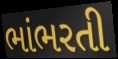
ભાંભરતી